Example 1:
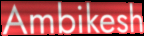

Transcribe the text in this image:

Ambikesh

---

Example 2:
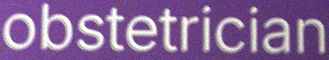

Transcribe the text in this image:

obstetrician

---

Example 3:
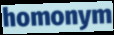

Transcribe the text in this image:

homonym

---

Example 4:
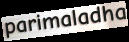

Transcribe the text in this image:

parimaladha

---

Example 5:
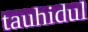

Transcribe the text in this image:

tauhidul